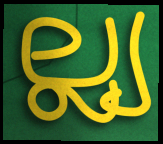
ല്ല്യ